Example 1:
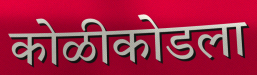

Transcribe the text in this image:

कोळीकोडला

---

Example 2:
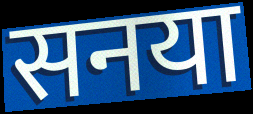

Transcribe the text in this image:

सनया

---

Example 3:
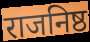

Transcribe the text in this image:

राजनिष्ठ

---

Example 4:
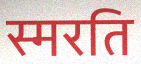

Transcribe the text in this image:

स्मरति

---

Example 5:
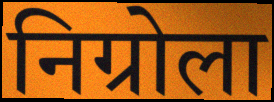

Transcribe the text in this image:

निग्रोला